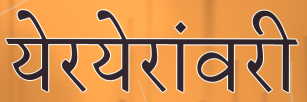
येरयेरांवरी